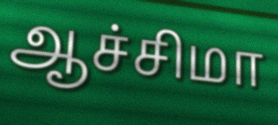
ஆச்சிமா